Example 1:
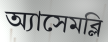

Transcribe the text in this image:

অ্যাসেমব্লি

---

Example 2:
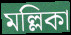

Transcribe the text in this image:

মল্লিকা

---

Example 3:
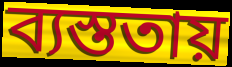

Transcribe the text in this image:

ব্যস্ততায়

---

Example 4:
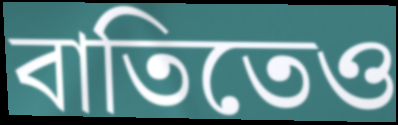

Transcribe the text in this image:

বাতিতেও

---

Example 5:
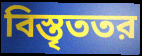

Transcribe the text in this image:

বিস্তৃততর